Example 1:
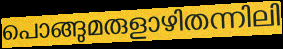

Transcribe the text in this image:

പൊങ്ങുമരുളാഴിതന്നിലി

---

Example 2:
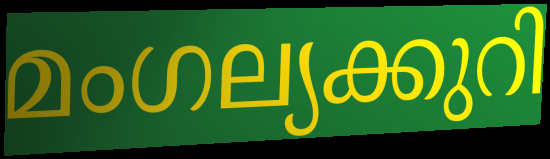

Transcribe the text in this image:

മംഗല്യക്കുറി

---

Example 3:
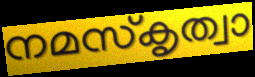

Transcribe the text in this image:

നമസ്കൃത്വാ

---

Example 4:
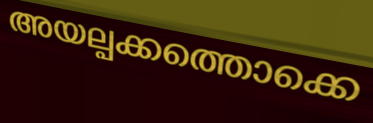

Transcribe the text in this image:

അയല്പക്കത്തൊക്കെ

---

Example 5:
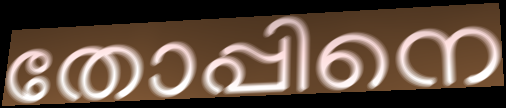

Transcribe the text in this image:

തോപ്പിനെ